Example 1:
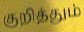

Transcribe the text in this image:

குறித்தும்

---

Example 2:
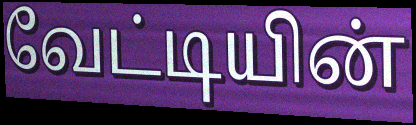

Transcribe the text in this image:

வேட்டியின்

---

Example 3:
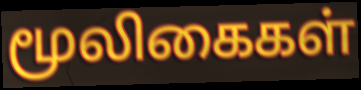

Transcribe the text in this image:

மூலிகைகள்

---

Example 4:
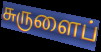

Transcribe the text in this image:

சுருளைப்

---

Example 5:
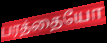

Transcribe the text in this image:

பரத்தையோ